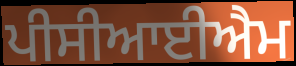
ਪੀਸੀਆਈਐਮ